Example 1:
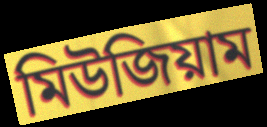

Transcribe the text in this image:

মিউজিয়াম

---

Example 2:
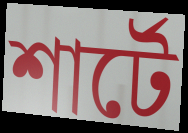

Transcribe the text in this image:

শার্টে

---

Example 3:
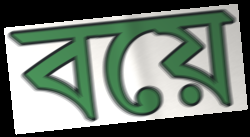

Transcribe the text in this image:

বয়ে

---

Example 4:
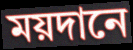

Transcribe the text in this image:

ময়দানে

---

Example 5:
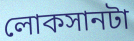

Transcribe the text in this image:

লোকসানটা